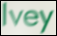
Ivey